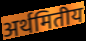
अर्थमितीय